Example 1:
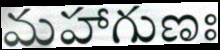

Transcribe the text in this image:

మహాగుణః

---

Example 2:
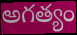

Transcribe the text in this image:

అగత్యం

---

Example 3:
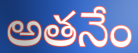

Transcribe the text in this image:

అతనేం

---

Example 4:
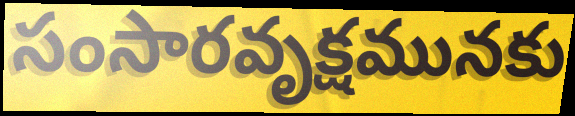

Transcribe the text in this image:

సంసారవృక్షమునకు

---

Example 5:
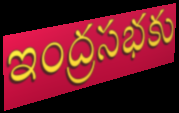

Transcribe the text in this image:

ఇంద్రసభకు